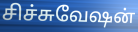
சிச்சுவேஷன்